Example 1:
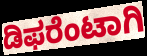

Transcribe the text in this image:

ಡಿಫರೆಂಟಾಗಿ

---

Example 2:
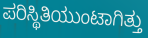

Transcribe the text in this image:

ಪರಿಸ್ಥಿತಿಯುಂಟಾಗಿತ್ತು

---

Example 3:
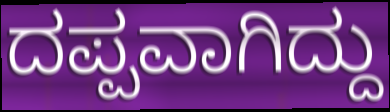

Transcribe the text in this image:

ದಪ್ಪವಾಗಿದ್ದು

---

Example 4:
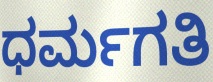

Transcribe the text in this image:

ಧರ್ಮಗತಿ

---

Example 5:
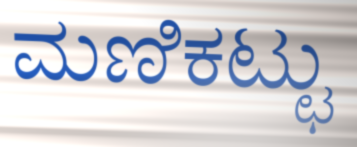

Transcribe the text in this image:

ಮಣಿಕಟ್ಟು